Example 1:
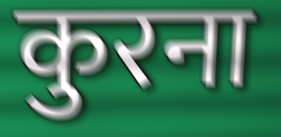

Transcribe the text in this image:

कुरना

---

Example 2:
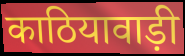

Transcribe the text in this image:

काठियावाड़ी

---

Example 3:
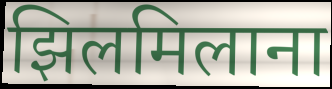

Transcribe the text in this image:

झिलमिलाना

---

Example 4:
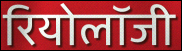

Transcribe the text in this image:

रियोलॉजी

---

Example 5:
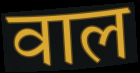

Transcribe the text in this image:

वाल